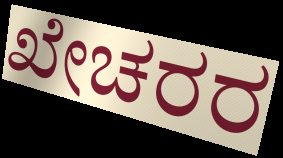
ಖೇಚರರ